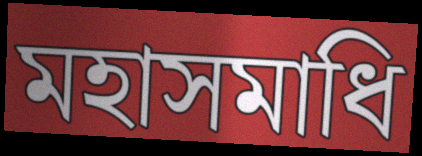
মহাসমাধি